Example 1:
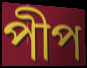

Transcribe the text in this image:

পীপ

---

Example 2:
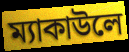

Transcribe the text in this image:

ম্যাকাউলে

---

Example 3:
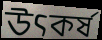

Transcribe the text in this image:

উৎকর্ষ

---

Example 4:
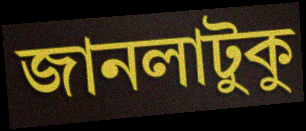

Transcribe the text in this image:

জানলাটুকু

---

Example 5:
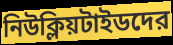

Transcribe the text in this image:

নিউক্লিয়টাইডদের